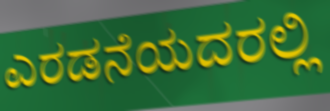
ಎರಡನೆಯದರಲ್ಲಿ